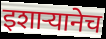
इशाऱ्यानेच